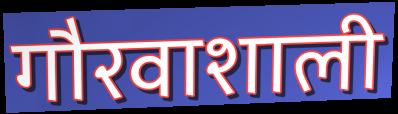
गौरवाशाली